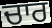
ਚਾਰ